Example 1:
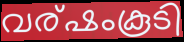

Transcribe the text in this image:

വര്ഷംകൂടി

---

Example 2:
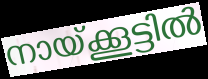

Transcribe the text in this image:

നായ്‌ക്കൂട്ടിൽ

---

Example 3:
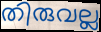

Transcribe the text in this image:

തിരുവല്ല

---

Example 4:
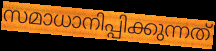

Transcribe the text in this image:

സമാധാനിപ്പിക്കുന്നത്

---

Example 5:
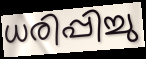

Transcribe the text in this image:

ധരിപ്പിച്ചു